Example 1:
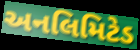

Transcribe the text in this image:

અનલિમિટેડ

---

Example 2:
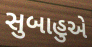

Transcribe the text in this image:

સુબાહુએ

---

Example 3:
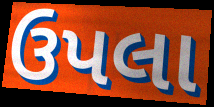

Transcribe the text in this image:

ઉપલા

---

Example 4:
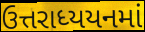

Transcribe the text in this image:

ઉત્તરાધ્યયનમાં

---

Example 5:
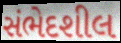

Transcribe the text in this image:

સંભેદશીલ